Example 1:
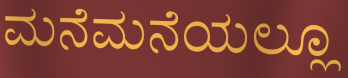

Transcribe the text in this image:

ಮನೆಮನೆಯಲ್ಲೂ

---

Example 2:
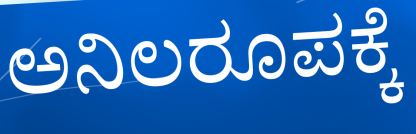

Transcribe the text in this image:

ಅನಿಲರೂಪಕ್ಕೆ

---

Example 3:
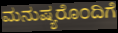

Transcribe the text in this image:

ಮನುಷ್ಯರೊಂದಿಗೆ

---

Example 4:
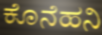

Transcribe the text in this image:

ಕೊನೆಹನಿ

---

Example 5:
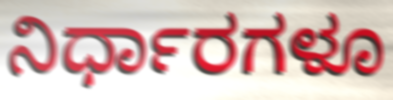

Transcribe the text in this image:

ನಿರ್ಧಾರಗಳೂ